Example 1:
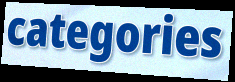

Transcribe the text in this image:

categories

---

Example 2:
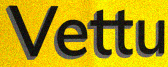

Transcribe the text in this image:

Vettu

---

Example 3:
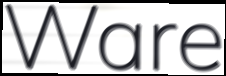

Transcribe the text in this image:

Ware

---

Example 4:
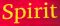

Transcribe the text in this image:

Spirit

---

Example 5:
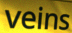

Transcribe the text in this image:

veins